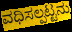
ವಧಿಸಲ್ಪಟ್ಟನು